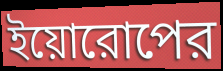
ইয়োরোপের